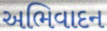
અભિવાદન